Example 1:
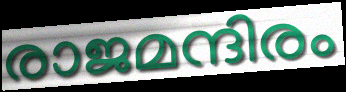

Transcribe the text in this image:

രാജമന്ദിരം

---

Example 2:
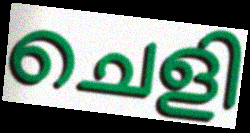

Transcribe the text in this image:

ചെളി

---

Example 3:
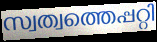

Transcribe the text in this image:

സ്വത്വത്തെപ്പറ്റി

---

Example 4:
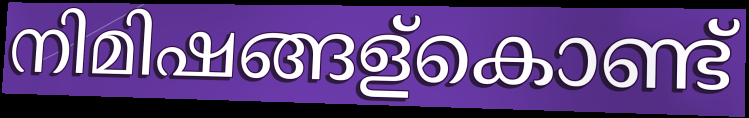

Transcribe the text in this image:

നിമിഷങ്ങള്കൊണ്ട്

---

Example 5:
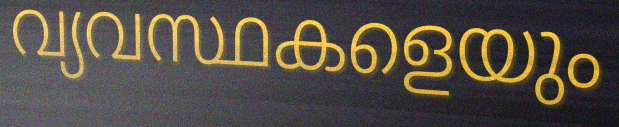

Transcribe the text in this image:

വ്യവസ്ഥകളെയും